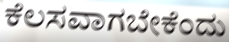
ಕೆಲಸವಾಗಬೇಕೆಂದು